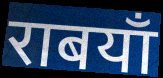
राबयाँ